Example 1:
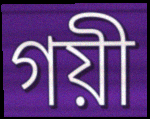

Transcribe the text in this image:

গয়ী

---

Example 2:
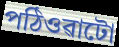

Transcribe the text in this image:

পঠিওৱাটো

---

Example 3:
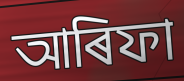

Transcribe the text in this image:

আৰিফা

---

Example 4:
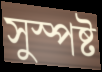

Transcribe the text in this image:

সুস্পষ্ট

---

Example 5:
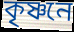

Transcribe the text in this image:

কৃষ্ণনে